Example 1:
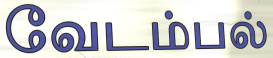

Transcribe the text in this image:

வேடம்பல்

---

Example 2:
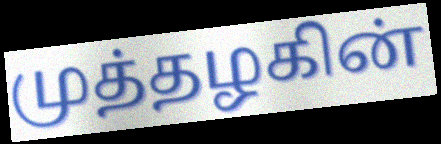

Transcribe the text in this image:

முத்தழகின்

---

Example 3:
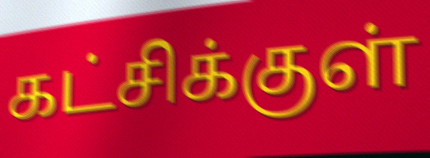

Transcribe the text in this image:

கட்சிக்குள்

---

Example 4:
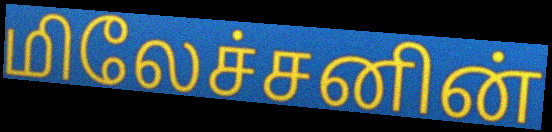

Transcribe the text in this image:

மிலேச்சனின்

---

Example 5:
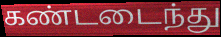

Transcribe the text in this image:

கண்டடைந்து